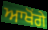
ਆਖੋਂਗੇ